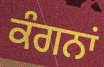
ਕੰਗਨਾਂ